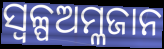
ସ୍ୱଳ୍ପଅମ୍ଳଜାନ